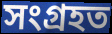
সংগ্ৰহত